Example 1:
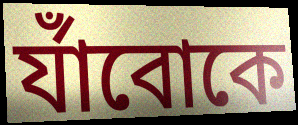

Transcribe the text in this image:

র্যাঁবোকে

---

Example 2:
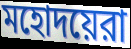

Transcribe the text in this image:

মহোদয়েরা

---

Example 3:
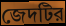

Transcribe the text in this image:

জেদটির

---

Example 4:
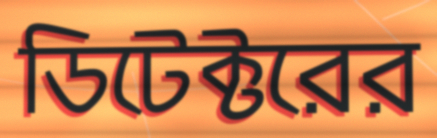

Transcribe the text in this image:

ডিটেক্টরের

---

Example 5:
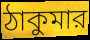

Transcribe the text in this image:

ঠাকুমার